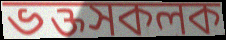
ভক্তসকলক